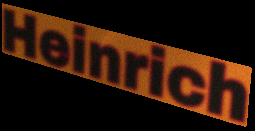
Heinrich